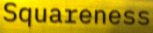
Squareness